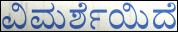
ವಿಮರ್ಶೆಯಿದೆ